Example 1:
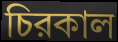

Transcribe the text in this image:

চিরকাল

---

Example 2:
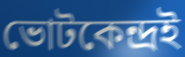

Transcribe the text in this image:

ভোটকেন্দ্রই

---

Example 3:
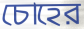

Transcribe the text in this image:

চোহের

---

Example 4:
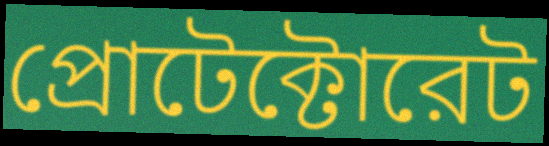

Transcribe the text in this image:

প্রোটেক্টোরেট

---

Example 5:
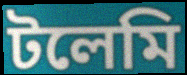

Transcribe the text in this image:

টলেমি